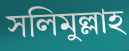
সলিমুল্লাহ